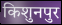
किशुनपुर